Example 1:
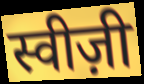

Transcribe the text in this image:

स्वीज़ी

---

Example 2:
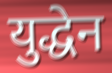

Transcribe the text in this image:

युद्धेन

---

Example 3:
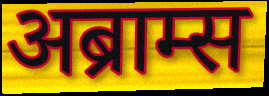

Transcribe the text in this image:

अब्राम्स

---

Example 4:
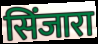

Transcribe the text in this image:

सिंजारा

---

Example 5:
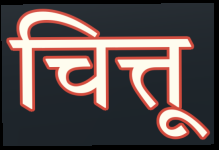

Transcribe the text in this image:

चित्तू